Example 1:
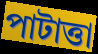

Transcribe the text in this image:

পাটাত্তা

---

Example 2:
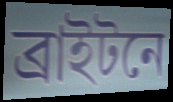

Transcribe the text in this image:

ব্রাইটনে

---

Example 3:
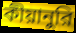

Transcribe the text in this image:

কীয়ানুরি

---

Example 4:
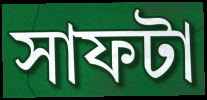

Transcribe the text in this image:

সাফটা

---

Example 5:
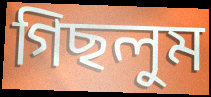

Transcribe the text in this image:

গিছলুম